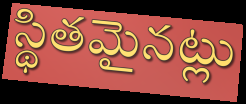
స్థితమైనట్లు